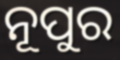
ନୂପୁର